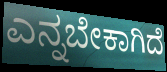
ಎನ್ನಬೇಕಾಗಿದೆ